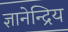
ज्ञानेन्द्रिय